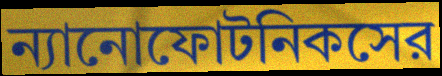
ন্যানোফোটনিকসের